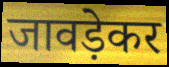
जावड़ेकर